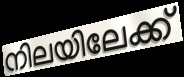
നിലയിലേക്ക്